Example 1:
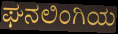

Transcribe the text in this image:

ಘನಲಿಂಗಿಯ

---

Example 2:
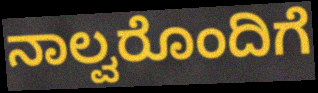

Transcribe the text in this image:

ನಾಲ್ವರೊಂದಿಗೆ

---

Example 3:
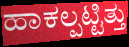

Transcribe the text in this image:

ಹಾಕಲ್ಪಟ್ಟಿತ್ತು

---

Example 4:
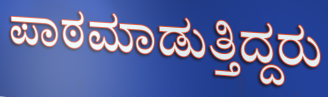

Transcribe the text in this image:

ಪಾಠಮಾಡುತ್ತಿದ್ದರು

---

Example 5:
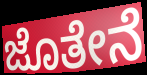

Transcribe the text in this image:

ಜೊತೇನೆ